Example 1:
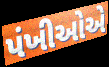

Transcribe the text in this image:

પંખીઓએ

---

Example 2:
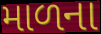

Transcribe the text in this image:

માળના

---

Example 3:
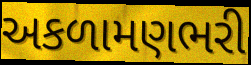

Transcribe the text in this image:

અકળામણભરી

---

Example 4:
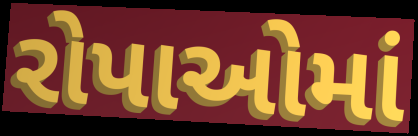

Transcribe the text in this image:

રોપાઓમાં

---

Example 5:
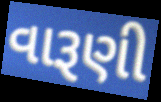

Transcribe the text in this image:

વારૂણી